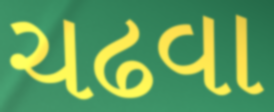
ચઢવા